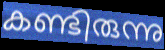
കണ്ടിരുന്നു